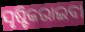
ସୃଷ୍ଟିକରାଇବା